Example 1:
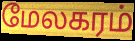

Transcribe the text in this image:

மேலகரம்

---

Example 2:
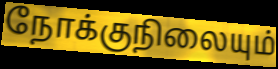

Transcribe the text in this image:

நோக்குநிலையும்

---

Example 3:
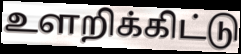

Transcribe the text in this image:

உளறிக்கிட்டு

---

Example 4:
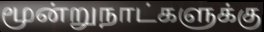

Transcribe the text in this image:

மூன்றுநாட்களுக்கு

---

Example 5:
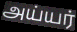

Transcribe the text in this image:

அய்யர்